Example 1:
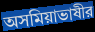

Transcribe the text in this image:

অসমিয়াভাষীর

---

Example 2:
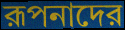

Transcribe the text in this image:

রূপনাদের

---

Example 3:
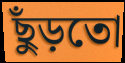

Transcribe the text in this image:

ছুঁড়তো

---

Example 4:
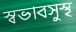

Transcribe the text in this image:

স্বভাবসুস্থ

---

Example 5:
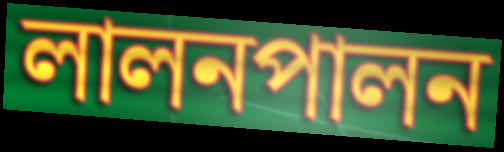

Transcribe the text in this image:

লালনপালন